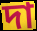
দা